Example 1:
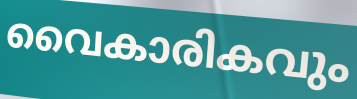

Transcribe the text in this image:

വൈകാരികവും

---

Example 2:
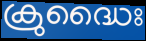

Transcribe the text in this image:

ക്രുദ്ധൈഃ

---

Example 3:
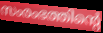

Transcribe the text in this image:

സംരംഭത്തിന്റെ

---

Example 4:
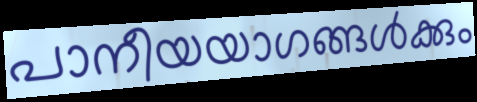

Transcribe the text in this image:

പാനീയയാഗങ്ങൾക്കും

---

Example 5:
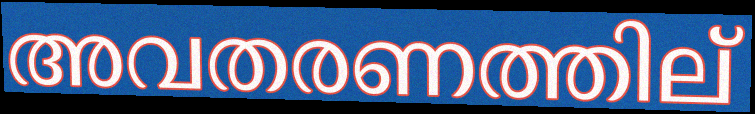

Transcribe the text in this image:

അവതരണത്തില്